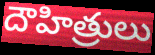
దౌహిత్రులు